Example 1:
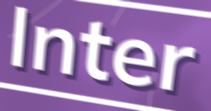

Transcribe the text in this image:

Inter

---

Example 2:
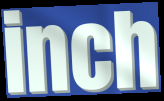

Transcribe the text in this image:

inch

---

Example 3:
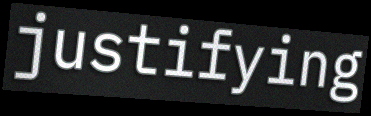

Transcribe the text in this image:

justifying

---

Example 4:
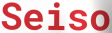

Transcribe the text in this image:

Seiso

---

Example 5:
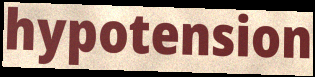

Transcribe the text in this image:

hypotension